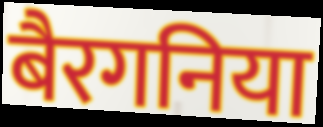
बैरगनिया